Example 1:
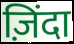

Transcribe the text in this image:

ज़िंदा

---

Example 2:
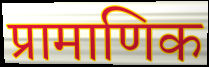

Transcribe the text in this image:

प्रामाणिक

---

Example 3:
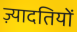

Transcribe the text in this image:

ज़्यादतियों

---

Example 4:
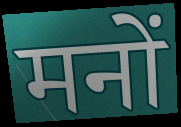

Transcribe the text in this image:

मनों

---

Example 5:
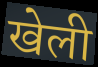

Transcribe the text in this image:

खेली